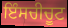
ਇੰਸਚੀਚੂਟ